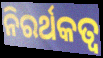
ନିରର୍ଥକତ୍ୱ